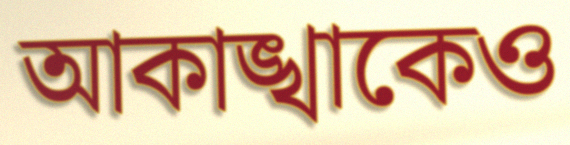
আকাঙ্খাকেও